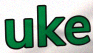
uke